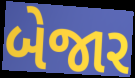
બેજાર